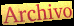
Archivo